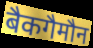
बैकगैमौन